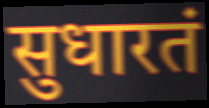
सुधारतं